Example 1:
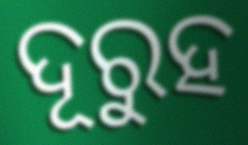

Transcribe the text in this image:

ଦୂରୁହ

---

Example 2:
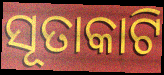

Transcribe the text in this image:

ସୂତାକାଟି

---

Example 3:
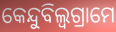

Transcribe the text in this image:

କେନ୍ଦୁବିଲ୍ଵଗ୍ରାମେ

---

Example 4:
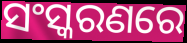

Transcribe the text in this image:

ସଂସ୍କରଣରେ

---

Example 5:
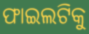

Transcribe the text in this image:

ଫାଇଲଟିକୁ